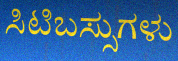
ಸಿಟಿಬಸ್ಸುಗಳು